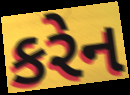
કરેન